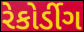
રેકોર્ડીગ